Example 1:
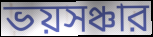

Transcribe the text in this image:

ভয়সঞ্চার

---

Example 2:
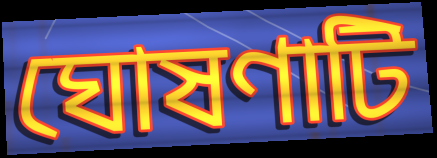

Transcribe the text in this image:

ঘোষণাটি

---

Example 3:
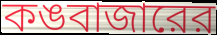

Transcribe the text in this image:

কঙবাজারের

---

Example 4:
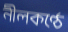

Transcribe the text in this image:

নীলকণ্ঠে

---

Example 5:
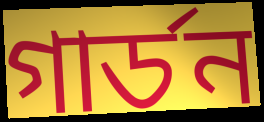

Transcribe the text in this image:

গার্ডন